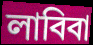
লাবিবা